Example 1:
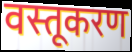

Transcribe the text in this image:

वस्तूकरण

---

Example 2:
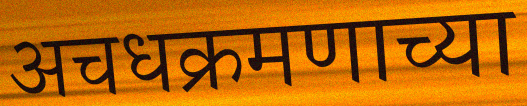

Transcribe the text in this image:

अचधक्रमणाच्या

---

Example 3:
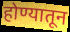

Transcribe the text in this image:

होण्यातून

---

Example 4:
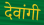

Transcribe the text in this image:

देवांगी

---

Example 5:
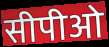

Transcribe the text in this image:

सीपीओ